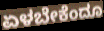
ಏಳಬೇಕೆಂದೂ